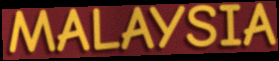
MALAYSIA